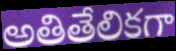
అతితేలికగా